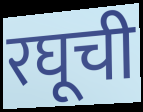
रघूची